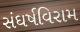
સંઘર્ષવિરામ